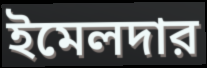
ইমেলদার